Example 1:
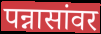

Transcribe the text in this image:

पन्नासांवर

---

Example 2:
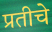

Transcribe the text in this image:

प्रतीचे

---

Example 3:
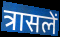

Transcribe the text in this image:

त्रासलें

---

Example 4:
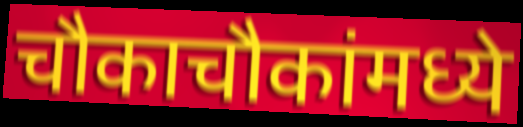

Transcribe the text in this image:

चौकाचौकांमध्ये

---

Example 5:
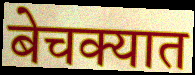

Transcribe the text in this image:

बेचक्यात